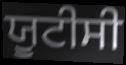
ਯੂਟੀਸੀ